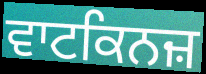
ਵਾਟਕਿਨਜ਼